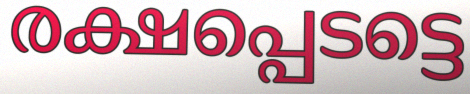
രക്ഷപ്പെടട്ടെ